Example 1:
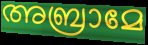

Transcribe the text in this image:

അബ്രാമേ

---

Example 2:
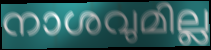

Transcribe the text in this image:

നാശവുമില്ല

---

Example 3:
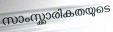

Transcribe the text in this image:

സാംസ്ക്കാരികതയുടെ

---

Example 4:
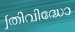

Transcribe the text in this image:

ഽതിവിദ്ധോ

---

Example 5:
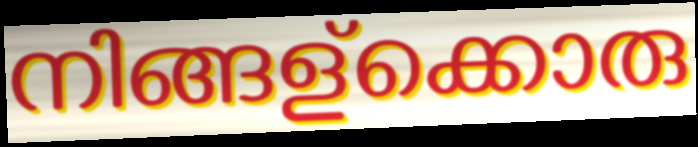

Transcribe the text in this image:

നിങ്ങള്ക്കൊരു